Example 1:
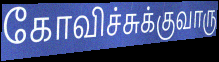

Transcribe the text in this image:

கோவிச்சுக்குவாரு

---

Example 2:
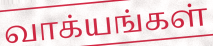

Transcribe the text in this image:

வாக்யங்கள்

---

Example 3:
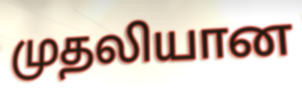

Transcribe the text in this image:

முதலியான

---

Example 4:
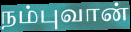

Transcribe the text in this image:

நம்புவான்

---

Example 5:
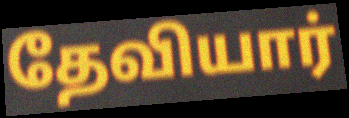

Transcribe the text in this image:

தேவியார்